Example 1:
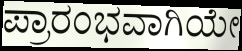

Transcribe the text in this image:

ಪ್ರಾರಂಭವಾಗಿಯೇ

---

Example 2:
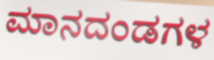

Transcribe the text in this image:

ಮಾನದಂಡಗಳ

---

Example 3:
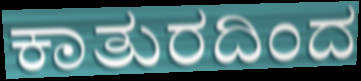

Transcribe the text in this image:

ಕಾತುರದಿಂದ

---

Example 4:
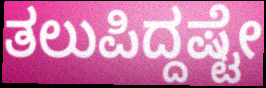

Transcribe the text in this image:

ತಲುಪಿದ್ದಷ್ಟೇ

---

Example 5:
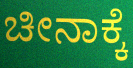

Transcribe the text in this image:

ಚೀನಾಕ್ಕೆ